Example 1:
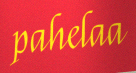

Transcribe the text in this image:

pahelaa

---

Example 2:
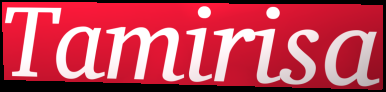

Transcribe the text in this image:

Tamirisa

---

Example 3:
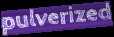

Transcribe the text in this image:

pulverized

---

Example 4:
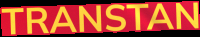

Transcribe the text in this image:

TRANSTAN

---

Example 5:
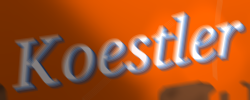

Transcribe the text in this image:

Koestler